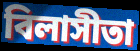
বিলাসীতা